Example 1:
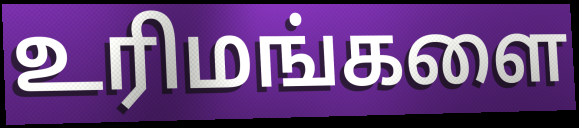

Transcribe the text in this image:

உரிமங்களை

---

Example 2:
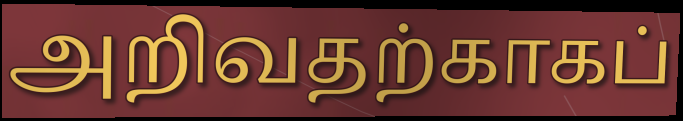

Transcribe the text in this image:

அறிவதற்காகப்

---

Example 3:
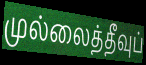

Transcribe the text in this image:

முல்லைத்தீவுப்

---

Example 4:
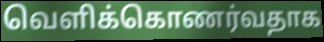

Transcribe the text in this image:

வெளிக்கொணர்வதாக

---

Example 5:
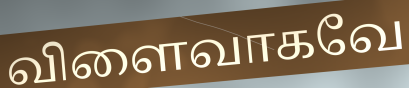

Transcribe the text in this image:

விளைவாகவே